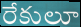
రేకులూ